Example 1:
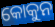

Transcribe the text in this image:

କୋକୁନ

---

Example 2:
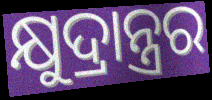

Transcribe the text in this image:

କ୍ଷୁଦ୍ରାନ୍ତ୍ରର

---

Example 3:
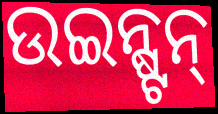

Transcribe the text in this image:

ଉଇନ୍ଷ୍ଟନ୍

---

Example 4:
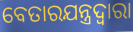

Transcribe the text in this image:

ବେତାରଯନ୍ତ୍ରଦ୍ୱାରା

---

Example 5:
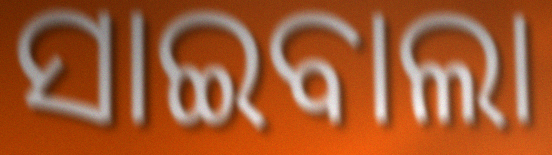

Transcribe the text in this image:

ସାଇବାଲା